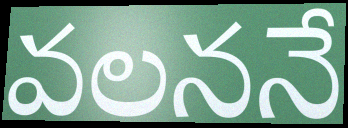
వలననే